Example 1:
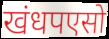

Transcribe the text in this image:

खंधपएसो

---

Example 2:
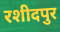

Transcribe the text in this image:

रशीदपुर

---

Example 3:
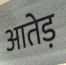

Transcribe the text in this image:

आतेड़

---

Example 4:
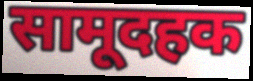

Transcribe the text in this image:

सामूदहक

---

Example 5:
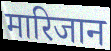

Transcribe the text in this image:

मारिजान